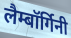
लैम्बॉर्गिनी